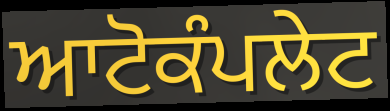
ਆਟੋਕੰਪਲੇਟ